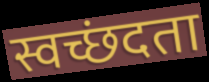
स्वच्छंदता